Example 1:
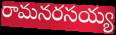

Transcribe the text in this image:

రామనరసయ్య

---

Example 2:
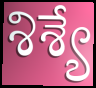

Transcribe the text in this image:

శిశ్యే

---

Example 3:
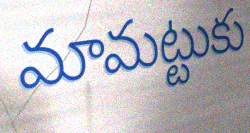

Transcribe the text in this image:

మామట్టుకు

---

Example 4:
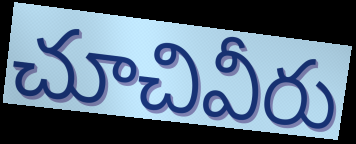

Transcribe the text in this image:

చూచివీరు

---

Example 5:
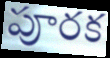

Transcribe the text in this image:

పూరక